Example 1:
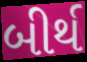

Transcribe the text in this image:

બીર્થ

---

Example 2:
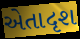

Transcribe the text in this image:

એતાદૃશ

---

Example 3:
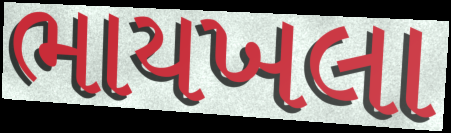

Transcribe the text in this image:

ભાયખલા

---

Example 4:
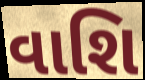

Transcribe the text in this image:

વાશિ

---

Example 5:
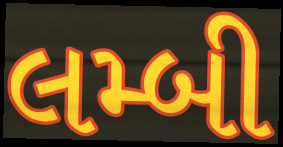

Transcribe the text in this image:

લમ્બી